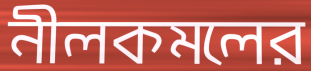
নীলকমলের